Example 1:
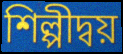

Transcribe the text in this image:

শিল্পীদ্বয়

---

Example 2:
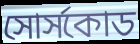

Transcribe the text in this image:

সোর্সকোড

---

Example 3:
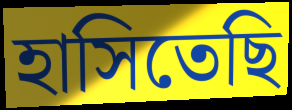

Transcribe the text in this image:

হাসিতেছি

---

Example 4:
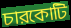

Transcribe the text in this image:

চারকোটি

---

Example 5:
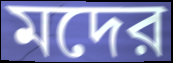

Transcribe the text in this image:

মদের